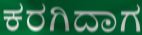
ಕರಗಿದಾಗ